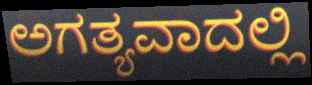
ಅಗತ್ಯವಾದಲ್ಲಿ